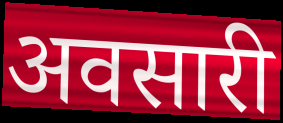
अवसारी